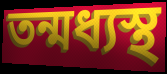
তন্মধ্যস্থ